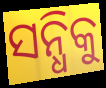
ସନ୍ଧିକୁ